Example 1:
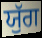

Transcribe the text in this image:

ਯੁੱਗ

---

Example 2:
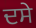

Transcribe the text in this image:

ਦਸੇ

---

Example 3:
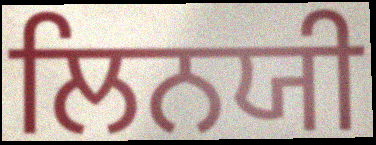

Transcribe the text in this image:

ਲਿਨਯੀ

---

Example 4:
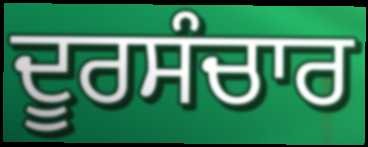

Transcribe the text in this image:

ਦੂਰਸੰਚਾਰ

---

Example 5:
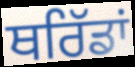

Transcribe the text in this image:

ਥਰਿੱਡਾਂ